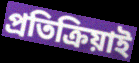
প্রতিক্রিয়াই